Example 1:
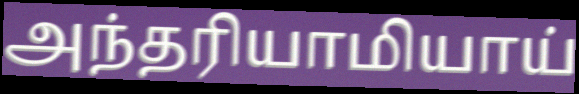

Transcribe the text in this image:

அந்தரியாமியாய்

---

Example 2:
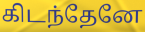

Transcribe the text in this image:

கிடந்தேனே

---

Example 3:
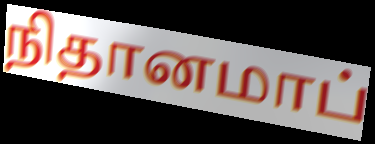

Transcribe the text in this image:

நிதானமாப்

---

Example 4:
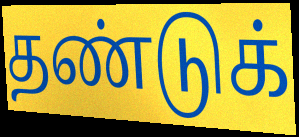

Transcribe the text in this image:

தண்டுக்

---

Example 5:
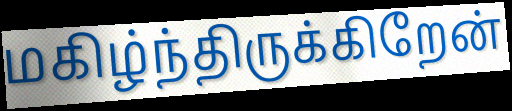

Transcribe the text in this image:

மகிழ்ந்திருக்கிறேன்